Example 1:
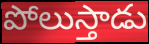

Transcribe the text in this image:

పోలుస్తాడు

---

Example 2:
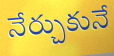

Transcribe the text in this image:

నేర్చుకునే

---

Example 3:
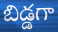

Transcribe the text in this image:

బిడ్డగా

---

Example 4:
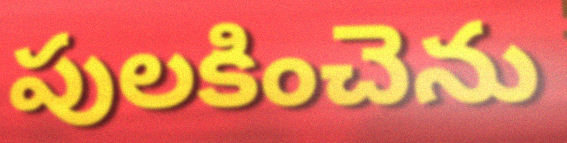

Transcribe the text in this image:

పులకించెను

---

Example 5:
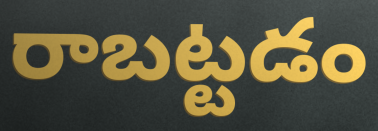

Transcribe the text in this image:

రాబట్టడం